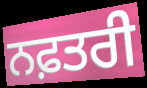
ਨਫ਼ਤਰੀ